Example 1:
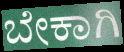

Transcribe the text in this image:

ಬೇಕಾಗಿ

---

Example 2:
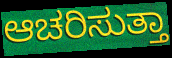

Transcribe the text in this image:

ಆಚರಿಸುತ್ತಾ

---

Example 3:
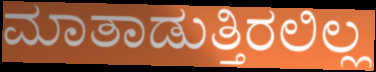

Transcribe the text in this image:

ಮಾತಾಡುತ್ತಿರಲಿಲ್ಲ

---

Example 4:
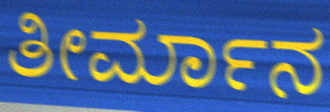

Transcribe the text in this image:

ತೀರ್ಮಾನ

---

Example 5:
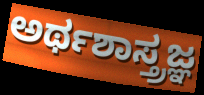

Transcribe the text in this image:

ಅರ್ಥಶಾಸ್ತ್ರಜ್ಞ